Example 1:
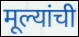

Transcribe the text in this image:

मूल्यांची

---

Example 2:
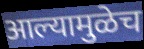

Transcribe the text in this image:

आल्यामुळेच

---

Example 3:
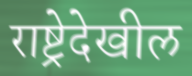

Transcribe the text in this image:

राष्ट्रेदेखील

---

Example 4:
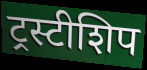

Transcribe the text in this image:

ट्रस्टीशिप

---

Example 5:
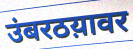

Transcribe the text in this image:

उंबरठय़ावर